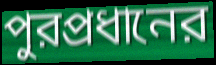
পুরপ্রধানের